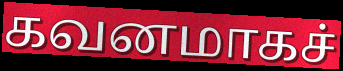
கவனமாகச்